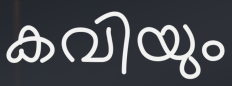
കവിയും